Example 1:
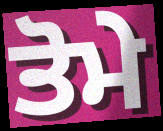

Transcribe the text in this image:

ਤੋਮੇ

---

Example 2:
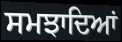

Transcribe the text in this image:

ਸਮਝਾਦਿਆਂ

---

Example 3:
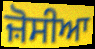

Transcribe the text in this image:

ਜ਼ੋਸੀਆ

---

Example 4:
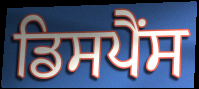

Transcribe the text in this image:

ਡਿਸਪੈਂਸ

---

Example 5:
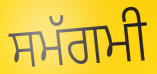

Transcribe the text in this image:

ਸਮੱਗਮੀ